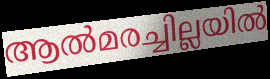
ആൽമരച്ചില്ലയിൽ